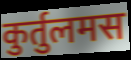
कुर्तुलमस